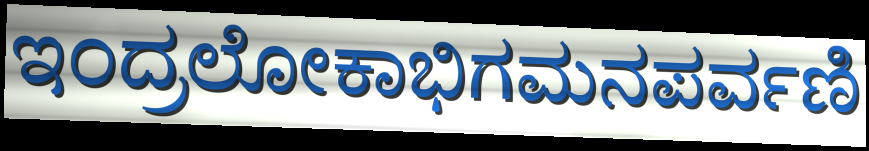
ಇಂದ್ರಲೋಕಾಭಿಗಮನಪರ್ವಣಿ